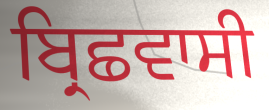
ਬ੍ਰਿਛਵਾਸੀ